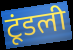
टूंडली